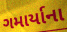
ગમાર્યાના